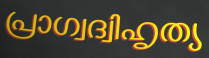
പ്രാഗ്വദ്വിഹൃത്യ